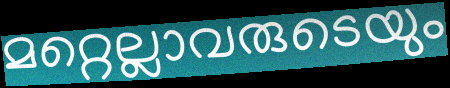
മറ്റെല്ലാവരുടെയും